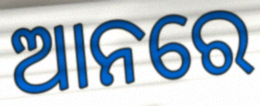
ଆନରେ